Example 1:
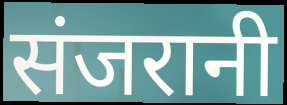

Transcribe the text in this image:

संजरानी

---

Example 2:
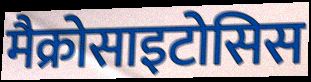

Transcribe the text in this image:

मैक्रोसाइटोसिस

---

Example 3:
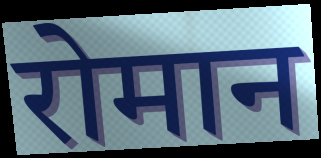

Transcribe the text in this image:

रोमान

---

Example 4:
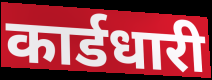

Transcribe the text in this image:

कार्डधारी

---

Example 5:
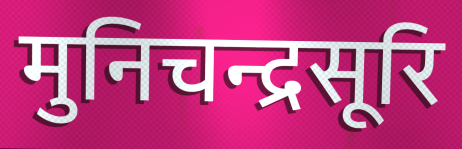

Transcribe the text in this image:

मुनिचन्द्रसूरि